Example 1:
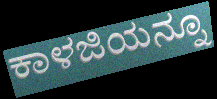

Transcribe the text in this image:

ಕಾಳಜಿಯನ್ನೂ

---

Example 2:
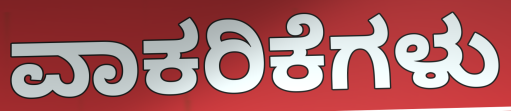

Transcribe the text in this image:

ವಾಕರಿಕೆಗಳು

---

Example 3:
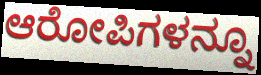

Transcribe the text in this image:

ಆರೋಪಿಗಳನ್ನೂ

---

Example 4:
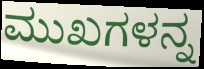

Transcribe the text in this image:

ಮುಖಗಳನ್ನ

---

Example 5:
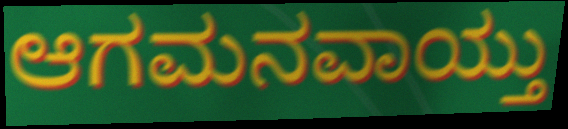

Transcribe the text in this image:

ಆಗಮನವಾಯ್ತು